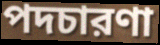
পদচারণা